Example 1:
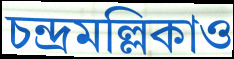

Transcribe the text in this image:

চন্দ্রমল্লিকাও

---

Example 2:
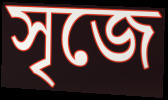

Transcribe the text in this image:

সৃজে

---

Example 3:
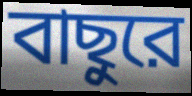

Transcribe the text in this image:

বাছুরে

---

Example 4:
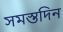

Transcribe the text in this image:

সমস্তদিন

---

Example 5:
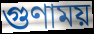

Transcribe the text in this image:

গুণাময়